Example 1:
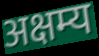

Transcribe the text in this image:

अक्षम्य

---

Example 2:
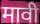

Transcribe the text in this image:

मावी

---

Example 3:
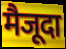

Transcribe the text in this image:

मैजूदा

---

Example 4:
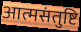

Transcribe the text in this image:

आत्मसंतुष्टि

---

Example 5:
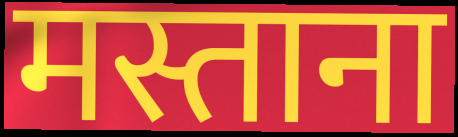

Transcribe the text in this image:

मस्ताना